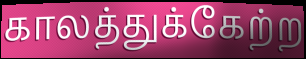
காலத்துக்கேற்ற